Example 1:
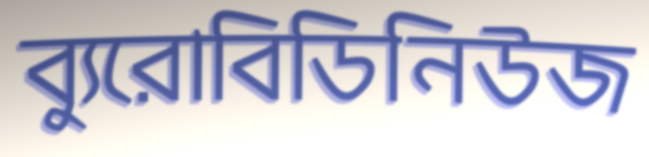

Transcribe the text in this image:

ব্যুরোবিডিনিউজ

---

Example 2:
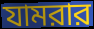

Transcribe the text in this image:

যামরার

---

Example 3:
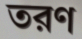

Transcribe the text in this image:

তরণ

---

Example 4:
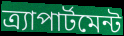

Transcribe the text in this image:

ত্র্যাপার্টমেন্ট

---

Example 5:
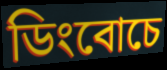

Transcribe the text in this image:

ডিংবোচে